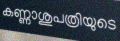
കണ്ണാശുപത്രിയുടെ